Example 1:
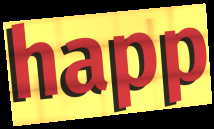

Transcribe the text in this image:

happ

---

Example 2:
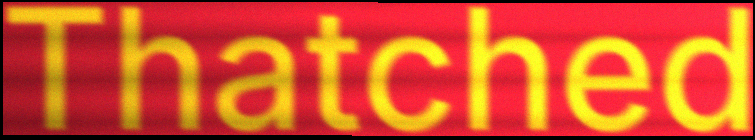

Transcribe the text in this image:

Thatched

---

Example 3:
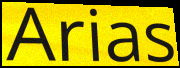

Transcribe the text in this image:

Arias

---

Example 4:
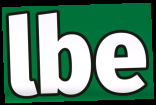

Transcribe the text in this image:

lbe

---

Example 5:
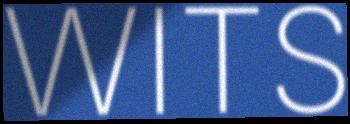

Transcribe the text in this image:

WITS